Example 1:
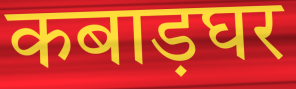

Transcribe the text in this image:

कबाड़घर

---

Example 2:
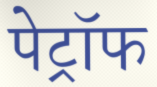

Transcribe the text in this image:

पेट्रॉफ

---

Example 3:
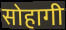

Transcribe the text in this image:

सोहागी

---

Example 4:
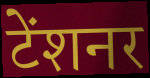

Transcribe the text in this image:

टेंशनर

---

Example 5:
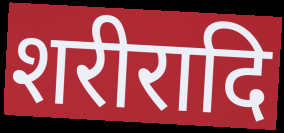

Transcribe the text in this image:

शरीरादि